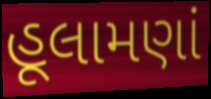
હૂલામણાં